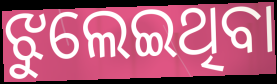
ଝୁଲେଇଥିବା